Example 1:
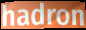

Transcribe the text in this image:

hadron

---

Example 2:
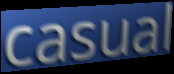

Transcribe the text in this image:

casual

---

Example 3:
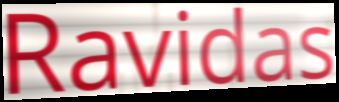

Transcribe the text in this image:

Ravidas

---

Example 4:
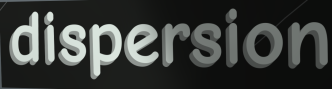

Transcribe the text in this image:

dispersion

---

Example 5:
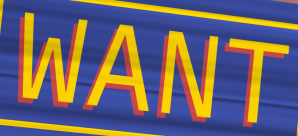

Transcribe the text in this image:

WANT